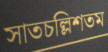
সাতচল্লিশতম